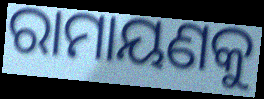
ରାମାୟଣକୁ